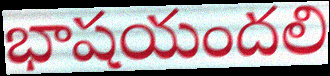
భాషయందలి